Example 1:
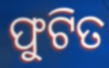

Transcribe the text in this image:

ଫୁଟିତ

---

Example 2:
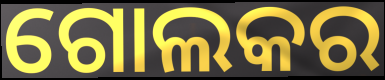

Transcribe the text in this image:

ଗୋଲକର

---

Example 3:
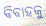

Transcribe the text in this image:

ଵିଵାହକୁ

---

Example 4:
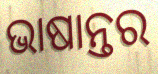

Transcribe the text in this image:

ଭାଷାନ୍ତର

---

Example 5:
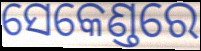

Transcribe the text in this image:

ସେକେଣ୍ଡରେ